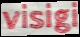
visigi